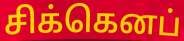
சிக்கெனப்